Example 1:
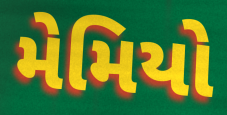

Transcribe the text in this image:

મેમિયો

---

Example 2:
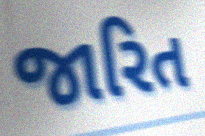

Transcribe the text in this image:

જારિત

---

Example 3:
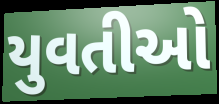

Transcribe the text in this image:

યુવતીઓ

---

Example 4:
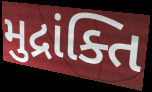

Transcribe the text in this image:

મુદ્રાંક્તિ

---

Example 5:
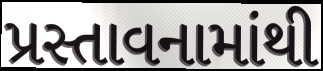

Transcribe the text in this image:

પ્રસ્તાવનામાંથી